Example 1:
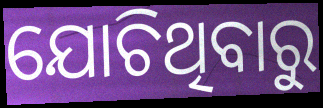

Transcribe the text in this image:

ଯୋଚିଥିବାରୁ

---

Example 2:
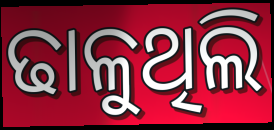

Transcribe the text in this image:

ଢାଳୁଥିଲି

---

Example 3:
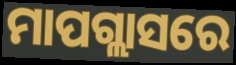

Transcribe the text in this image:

ମାପଗ୍ଲାସରେ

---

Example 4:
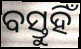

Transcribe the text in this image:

ବସ୍ତୁହିଁ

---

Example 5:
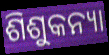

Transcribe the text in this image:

ଶିଶୁକନ୍ୟା